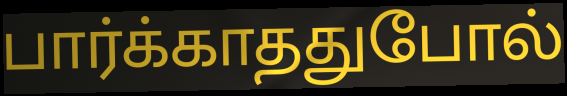
பார்க்காததுபோல்